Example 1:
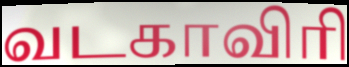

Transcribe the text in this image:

வடகாவிரி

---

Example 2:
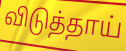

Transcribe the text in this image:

விடுத்தாய்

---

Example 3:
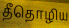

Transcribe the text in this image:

தீதொழிய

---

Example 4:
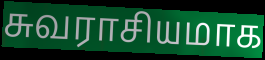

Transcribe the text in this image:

சுவராசியமாக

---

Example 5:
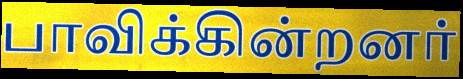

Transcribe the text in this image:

பாவிக்கின்றனர்